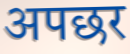
अपछर